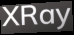
XRay